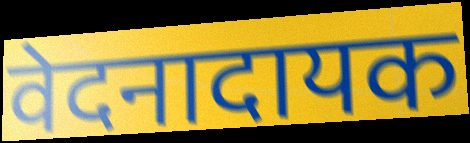
वेदनादायक